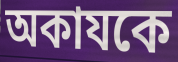
অকাযকে